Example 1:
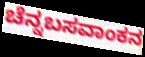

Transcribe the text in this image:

ಚೆನ್ನಬಸವಾಂಕನ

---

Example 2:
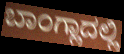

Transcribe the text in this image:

ಬಾಂಗ್ಲಾದಲ್ಲಿ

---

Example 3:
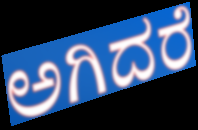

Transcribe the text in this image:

ಅಗಿದರೆ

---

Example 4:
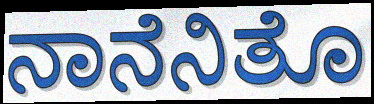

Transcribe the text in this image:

ನಾನೆನಿತೊ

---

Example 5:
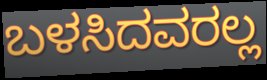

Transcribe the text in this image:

ಬಳಸಿದವರಲ್ಲ